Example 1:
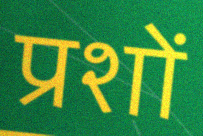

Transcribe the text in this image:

प्रशों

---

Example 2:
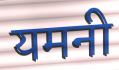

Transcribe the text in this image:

यमनी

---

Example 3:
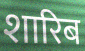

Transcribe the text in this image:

शारिब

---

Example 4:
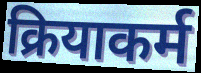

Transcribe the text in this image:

क्रियाकर्म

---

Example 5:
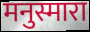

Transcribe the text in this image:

मनुस्मारा